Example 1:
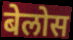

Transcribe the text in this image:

बेलोस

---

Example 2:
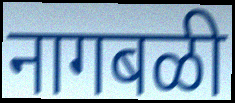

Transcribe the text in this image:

नागबळी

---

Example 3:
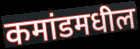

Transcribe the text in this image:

कमांडमधील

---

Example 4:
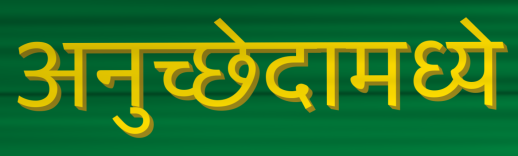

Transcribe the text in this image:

अनुच्छेदामध्ये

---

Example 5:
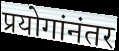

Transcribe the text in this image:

प्रयोगांनंतर